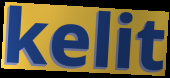
kelit